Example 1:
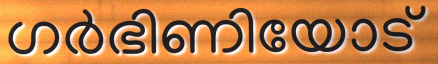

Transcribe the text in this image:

ഗർഭിണിയോട്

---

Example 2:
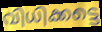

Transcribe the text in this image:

വിധിക്കട്ടെ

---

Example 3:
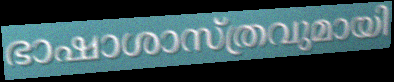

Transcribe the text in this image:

ഭാഷാശാസ്ത്രവുമായി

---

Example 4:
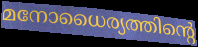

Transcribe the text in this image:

മനോധൈര്യത്തിന്റെ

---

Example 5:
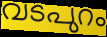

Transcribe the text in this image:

വടപുറം